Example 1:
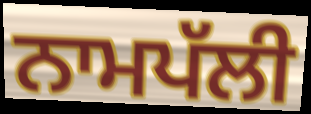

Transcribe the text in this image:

ਨਾਮਪੱਲੀ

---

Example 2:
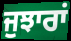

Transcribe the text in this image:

ਜੁਝਾਰਾਂ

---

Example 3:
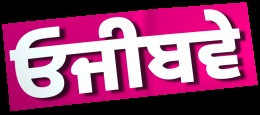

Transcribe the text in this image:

ਓਜੀਬਵੇ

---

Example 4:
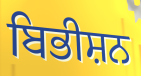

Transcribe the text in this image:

ਬਿਭੀਸ਼ਨ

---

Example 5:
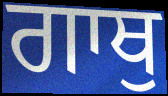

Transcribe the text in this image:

ਗਾਥੁ